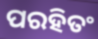
ପରହିତଂ